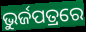
ଭୁର୍ଜପତ୍ରରେ